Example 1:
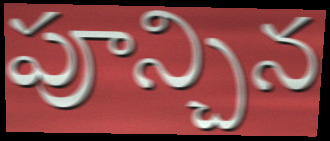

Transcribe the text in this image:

పూన్చిన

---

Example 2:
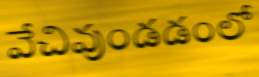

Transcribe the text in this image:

వేచివుండడంలో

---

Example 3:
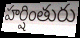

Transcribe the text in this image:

హర్షింతురు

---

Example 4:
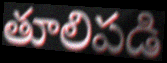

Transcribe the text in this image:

తూలిపడి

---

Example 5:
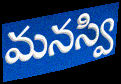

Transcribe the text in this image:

మనస్వి